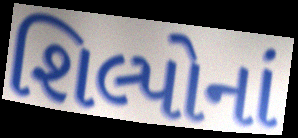
શિલ્પોનાં